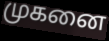
முகனை